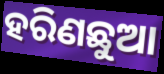
ହରିଣଛୁଆ